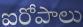
ఐరోపాలు